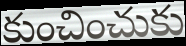
కుంచించుకు